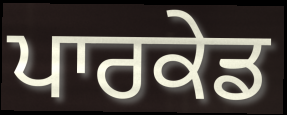
ਪਾਰਕੇਡ